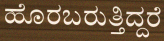
ಹೊರಬರುತ್ತಿದ್ದರೆ